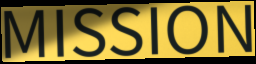
MISSION